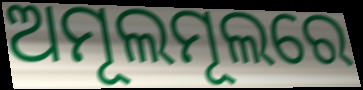
ଅମୂଲମୂଲରେ